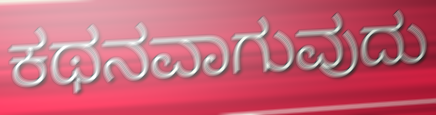
ಕಥನವಾಗುವುದು